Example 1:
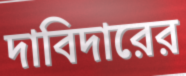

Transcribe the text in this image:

দাবিদারের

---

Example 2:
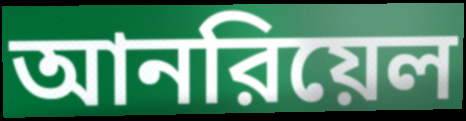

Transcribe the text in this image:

আনরিয়েল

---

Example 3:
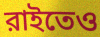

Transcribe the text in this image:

রাইতেও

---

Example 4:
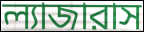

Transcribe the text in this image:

ল্যাজারাস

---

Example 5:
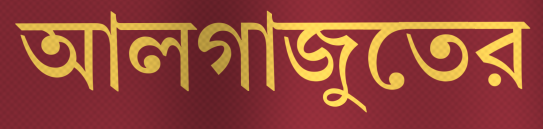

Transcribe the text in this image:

আলগাজুতের